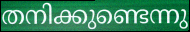
തനിക്കുണ്ടെന്നു